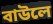
বাউলে